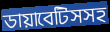
ডায়াবেটিসসহ